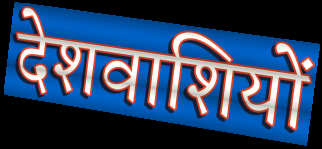
देशवाशियों